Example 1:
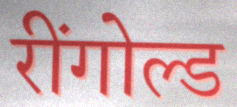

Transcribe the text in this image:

रींगोल्ड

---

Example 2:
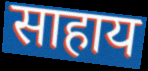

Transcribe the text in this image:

साहाय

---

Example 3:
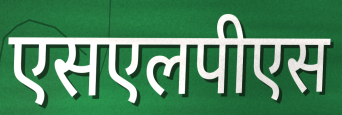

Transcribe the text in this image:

एसएलपीएस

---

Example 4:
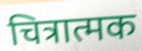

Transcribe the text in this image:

चित्रात्मक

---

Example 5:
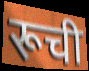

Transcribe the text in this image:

रूची